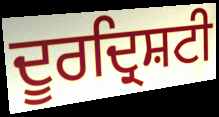
ਦੂਰਦ੍ਰਿਸ਼ਟੀ